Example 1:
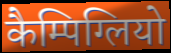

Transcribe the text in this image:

कैम्पिग्लियो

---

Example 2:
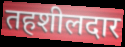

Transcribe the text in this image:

तहशीलदार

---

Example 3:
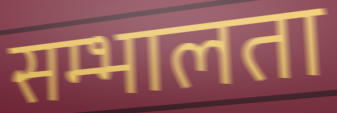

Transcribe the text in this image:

सम्भालता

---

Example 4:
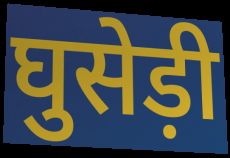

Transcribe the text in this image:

घुसेड़ी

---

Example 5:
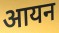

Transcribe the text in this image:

आयन